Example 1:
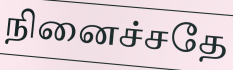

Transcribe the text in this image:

நினைச்சதே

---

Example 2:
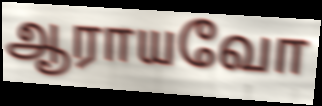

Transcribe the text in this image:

ஆராயவோ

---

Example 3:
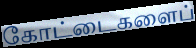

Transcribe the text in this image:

கோட்டைகளைப்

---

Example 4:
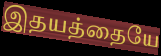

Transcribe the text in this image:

இதயத்தையே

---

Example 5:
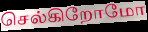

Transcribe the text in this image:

செல்கிறோமோ